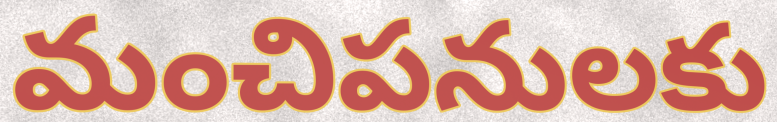
మంచిపనులకు